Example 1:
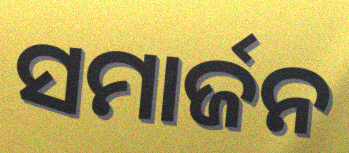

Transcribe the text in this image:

ସମାର୍ଜନ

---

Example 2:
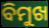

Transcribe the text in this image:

ବିମୁଖ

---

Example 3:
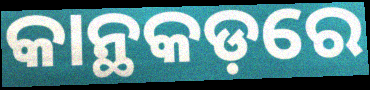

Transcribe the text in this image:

କାନ୍ଥକଡ଼ରେ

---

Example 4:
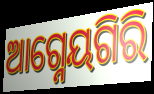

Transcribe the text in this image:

ଆଗ୍ନେୟଗିରି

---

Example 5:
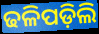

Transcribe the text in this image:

ଢଳିପଡ଼ିଲି